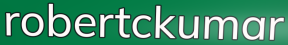
robertckumar